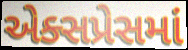
એક્સપ્રેસમાં